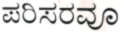
ಪರಿಸರವೂ